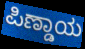
ಪಿಣ್ಡಾಯ